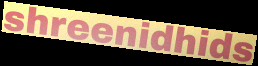
shreenidhids